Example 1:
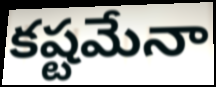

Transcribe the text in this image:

కష్టమేనా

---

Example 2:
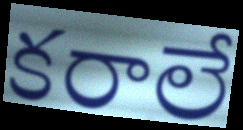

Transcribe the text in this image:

కరాలే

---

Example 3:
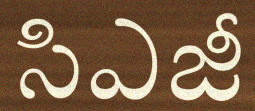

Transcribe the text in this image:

సిఎజీ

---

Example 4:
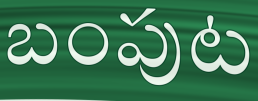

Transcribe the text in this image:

బంపుట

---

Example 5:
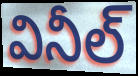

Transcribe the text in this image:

వినీల్